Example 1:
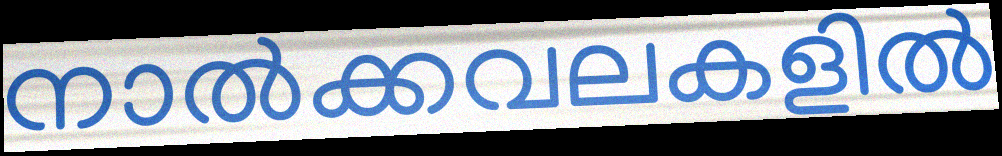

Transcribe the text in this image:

നാൽക്കവലകളിൽ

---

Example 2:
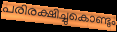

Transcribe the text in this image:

പരിരക്ഷിച്ചുകൊണ്ടും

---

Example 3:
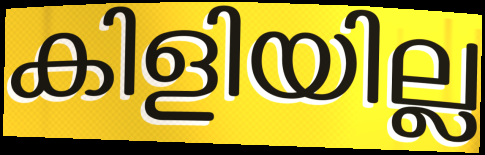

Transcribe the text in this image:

കിളിയില്ല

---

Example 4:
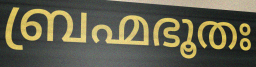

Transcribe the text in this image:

ബ്രഹ്മഭൂതഃ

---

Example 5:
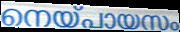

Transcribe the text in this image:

നെയ്പായസം